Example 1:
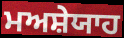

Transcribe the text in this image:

ਮਅਸ਼ੇਯਾਹ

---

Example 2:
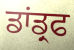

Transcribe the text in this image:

ਡਾਂਡ੍ਰਫ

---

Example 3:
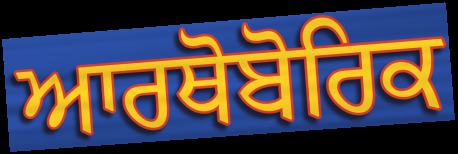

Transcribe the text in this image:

ਆਰਥੋਬੋਰਿਕ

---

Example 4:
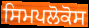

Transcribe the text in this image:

ਸਿਮਪਲੋਕੋਸ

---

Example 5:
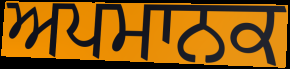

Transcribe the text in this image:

ਅਪਮਾਨਕ